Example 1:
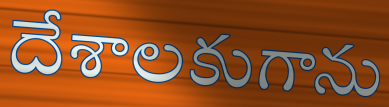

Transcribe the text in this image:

దేశాలకుగాను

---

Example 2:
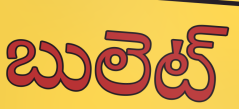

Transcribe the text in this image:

బులెట్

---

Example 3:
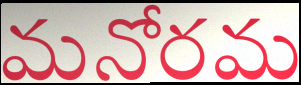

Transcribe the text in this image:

మనోరమ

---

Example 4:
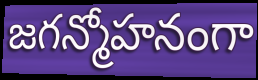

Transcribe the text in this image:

జగన్మోహనంగా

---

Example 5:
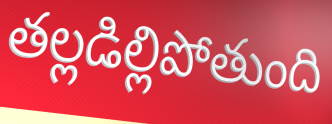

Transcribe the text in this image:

తల్లడిల్లిపోతుంది